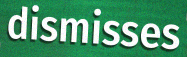
dismisses